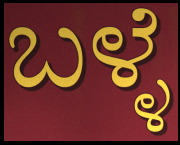
ಬಳ್ಳೆ